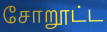
சோறூட்ட